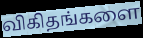
விகிதங்களை